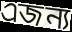
এজন্য